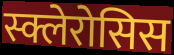
स्क्लेरोसिस